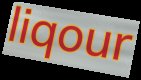
liqour